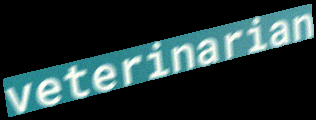
veterinarian